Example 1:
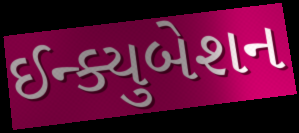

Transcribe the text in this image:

ઈન્ક્યુબેશન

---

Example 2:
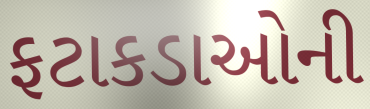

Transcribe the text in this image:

ફટાકડાઓની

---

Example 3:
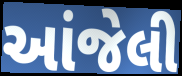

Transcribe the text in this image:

આંજેલી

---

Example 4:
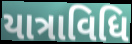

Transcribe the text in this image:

યાત્રાવિધિ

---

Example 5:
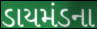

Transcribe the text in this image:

ડાયમંડના